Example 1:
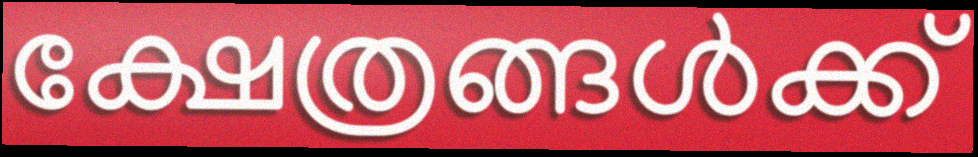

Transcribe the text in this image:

ക്ഷേത്രങ്ങൾക്ക്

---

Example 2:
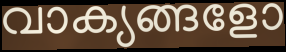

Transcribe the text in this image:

വാക്യങ്ങളോ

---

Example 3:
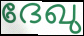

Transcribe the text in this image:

ദേഖു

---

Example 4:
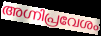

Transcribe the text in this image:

അഗ്നിപ്രവേശം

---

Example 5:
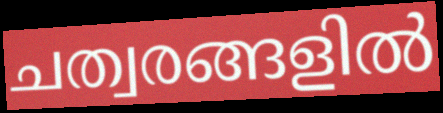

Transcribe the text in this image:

ചത്വരങ്ങളിൽ